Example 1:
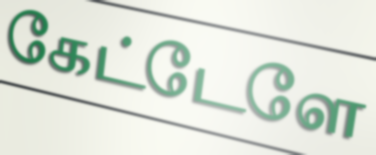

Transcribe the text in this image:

கேட்டேளே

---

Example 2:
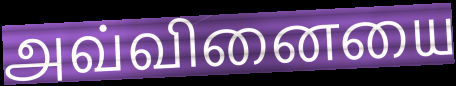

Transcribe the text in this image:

அவ்வினையை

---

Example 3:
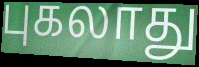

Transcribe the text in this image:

புகலாது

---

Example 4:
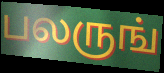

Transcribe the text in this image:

பலருங்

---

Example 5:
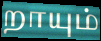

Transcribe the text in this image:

றாயும்